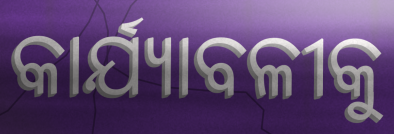
କାର୍ଯ୍ୟାବଳୀକୁ